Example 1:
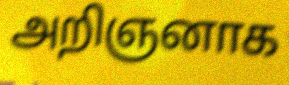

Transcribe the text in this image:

அறிஞனாக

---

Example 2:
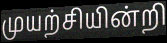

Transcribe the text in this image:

முயற்சியின்றி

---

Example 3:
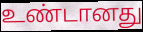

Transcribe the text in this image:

உண்டானது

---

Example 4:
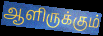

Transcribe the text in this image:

ஆளிருக்கும்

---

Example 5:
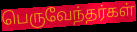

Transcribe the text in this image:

பெருவேந்தர்கள்